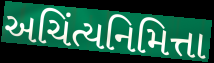
અચિંત્યનિમિત્તા